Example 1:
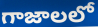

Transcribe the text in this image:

గాజాలలో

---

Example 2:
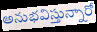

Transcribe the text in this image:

అనుభవిస్తున్నారో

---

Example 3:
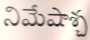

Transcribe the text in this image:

నిమేషాశ్చ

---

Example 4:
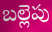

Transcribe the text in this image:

బల్లెపు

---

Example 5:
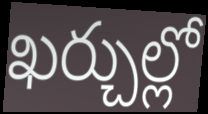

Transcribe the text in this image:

ఖర్చుల్లో